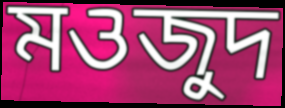
মওজুদ